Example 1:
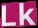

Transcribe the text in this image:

Lk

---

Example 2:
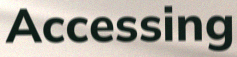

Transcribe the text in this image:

Accessing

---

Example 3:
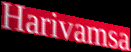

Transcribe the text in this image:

Harivamsa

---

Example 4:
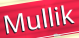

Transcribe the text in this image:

Mullik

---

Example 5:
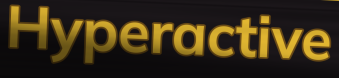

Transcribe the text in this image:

Hyperactive